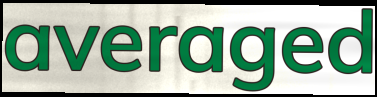
averaged